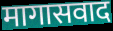
मागासवाद